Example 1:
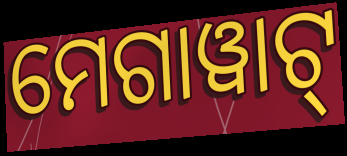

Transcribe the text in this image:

ମେଗାୱାଟ୍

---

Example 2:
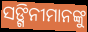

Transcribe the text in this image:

ସଙ୍ଗିନୀମାନଙ୍କୁ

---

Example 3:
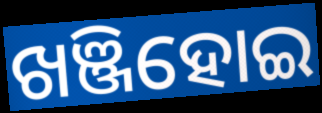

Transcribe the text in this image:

ଖଞ୍ଜିହୋଇ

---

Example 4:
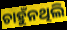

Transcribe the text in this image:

ଚାହୁଁନଥିଲି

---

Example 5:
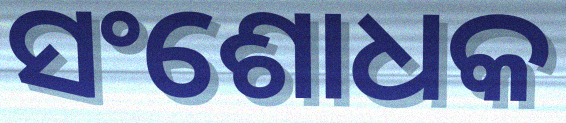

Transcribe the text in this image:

ସଂଶୋଧକ